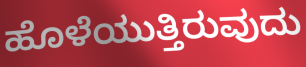
ಹೊಳೆಯುತ್ತಿರುವುದು